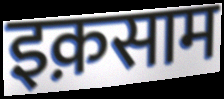
इक़साम